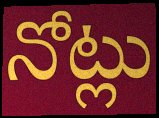
నోట్లు